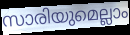
സാരിയുമെല്ലാം